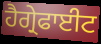
ਹੈਗ੍ਰੇਫਾਈਟ